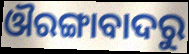
ଔରଙ୍ଗାବାଦରୁ